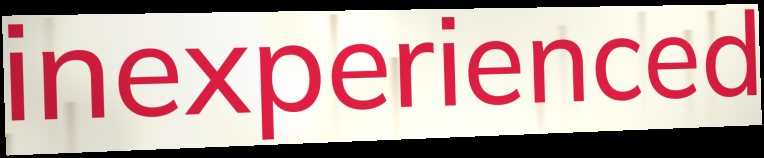
inexperienced